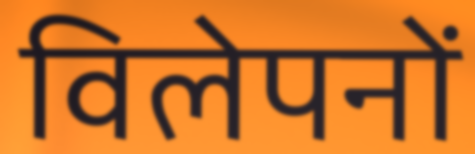
विलेपनों